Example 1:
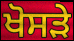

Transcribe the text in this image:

ਖੋਸੜੇ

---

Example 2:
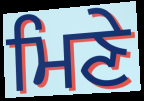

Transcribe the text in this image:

ਮਿਣੇ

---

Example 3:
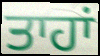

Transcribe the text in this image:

ਤਾਹਾਂ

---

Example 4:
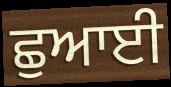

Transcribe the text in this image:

ਛੁਆਈ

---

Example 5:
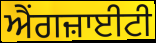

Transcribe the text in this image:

ਐਂਗਜ਼ਾਈਟੀ